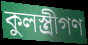
কুলস্ত্রীগণ